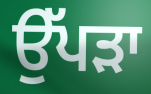
ਉੱਪੜਾ